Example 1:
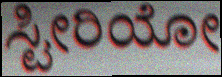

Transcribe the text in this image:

ಸ್ಟೀರಿಯೋ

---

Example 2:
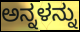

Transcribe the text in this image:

ಅನ್ನಳನ್ನು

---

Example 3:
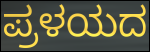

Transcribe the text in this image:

ಪ್ರಳಯದ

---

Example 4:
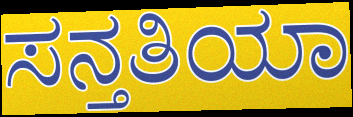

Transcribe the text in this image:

ಸನ್ತತಿಯಾ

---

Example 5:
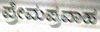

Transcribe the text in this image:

ಪ್ರೇಮಪ್ರವಾಹ